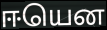
ஈயென